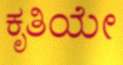
ಕೃತಿಯೇ